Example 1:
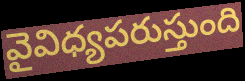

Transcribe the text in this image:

వైవిధ్యపరుస్తుంది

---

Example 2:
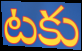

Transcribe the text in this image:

టకు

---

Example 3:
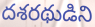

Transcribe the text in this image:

దశరథుడిని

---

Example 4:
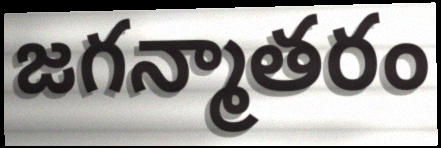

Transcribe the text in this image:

జగన్మాతరం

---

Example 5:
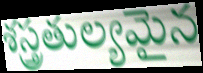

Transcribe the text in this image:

శస్త్రతుల్యమైన